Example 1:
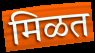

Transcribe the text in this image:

मिळत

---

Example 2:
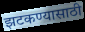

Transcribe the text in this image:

झटकण्यासाठी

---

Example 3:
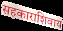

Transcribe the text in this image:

सहकाराशिवाय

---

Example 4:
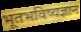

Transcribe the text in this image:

भूतभविष्यज्ञान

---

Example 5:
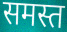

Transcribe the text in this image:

समस्त